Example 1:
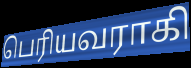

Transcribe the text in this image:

பெரியவராகி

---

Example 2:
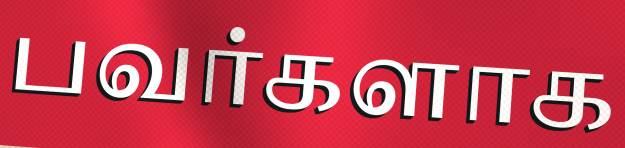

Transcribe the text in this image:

பவர்களாக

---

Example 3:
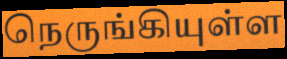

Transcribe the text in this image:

நெருங்கியுள்ள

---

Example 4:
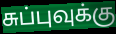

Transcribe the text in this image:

சுப்புவுக்கு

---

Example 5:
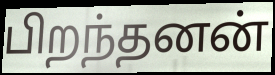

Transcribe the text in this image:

பிறந்தனன்